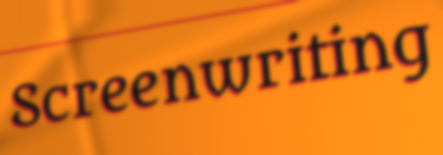
Screenwriting